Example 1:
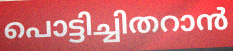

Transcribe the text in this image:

പൊട്ടിച്ചിതറാൻ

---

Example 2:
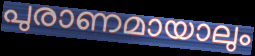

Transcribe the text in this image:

പുരാണമായാലും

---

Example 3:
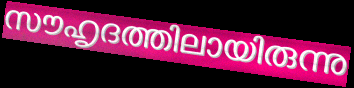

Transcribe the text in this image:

സൗഹൃദത്തിലായിരുന്നു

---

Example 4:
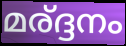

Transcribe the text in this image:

മര്ദ്ദനം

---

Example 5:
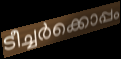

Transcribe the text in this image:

ടീച്ചർക്കൊപ്പം